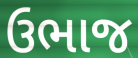
ઉભાજ